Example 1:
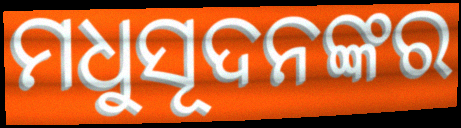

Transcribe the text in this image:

ମଧୁସୂଦନଙ୍କର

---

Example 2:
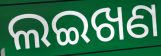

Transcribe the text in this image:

ଲଇଖଣ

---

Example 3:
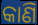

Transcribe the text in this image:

କାଣି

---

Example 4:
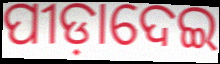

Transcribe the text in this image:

ପୀଡ଼ାଦେଇ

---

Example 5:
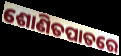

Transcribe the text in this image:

ଶୋଣିତପାତରେ